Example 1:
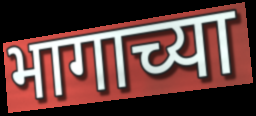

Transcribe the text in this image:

भागाच्या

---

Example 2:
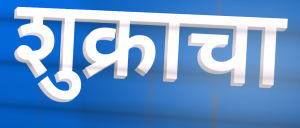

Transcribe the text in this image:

शुक्राचा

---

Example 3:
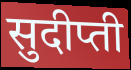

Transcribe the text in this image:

सुदीप्ती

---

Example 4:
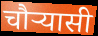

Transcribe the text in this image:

चौर्‍यासी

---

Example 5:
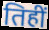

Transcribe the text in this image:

तिहीं